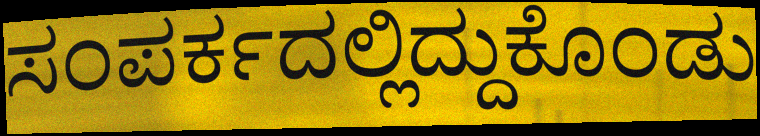
ಸಂಪರ್ಕದಲ್ಲಿದ್ದುಕೊಂಡು